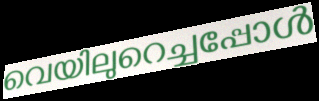
വെയിലുറെച്ചപ്പോൾ